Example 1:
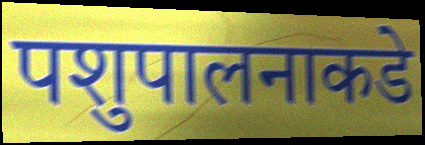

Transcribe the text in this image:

पशुपालनाकडे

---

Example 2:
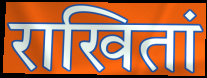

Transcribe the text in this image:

राखितां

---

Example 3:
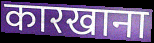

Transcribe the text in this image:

कारखाना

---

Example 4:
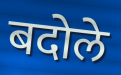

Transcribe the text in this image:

बदोले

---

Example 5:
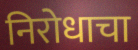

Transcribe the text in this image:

निरोधाचा